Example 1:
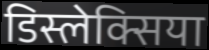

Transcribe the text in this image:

डिस्लेक्सिया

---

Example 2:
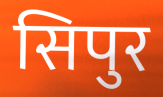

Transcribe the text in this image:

सिपुर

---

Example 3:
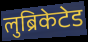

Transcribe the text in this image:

लुब्रिकेटेड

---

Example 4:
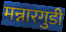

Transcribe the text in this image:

मन्नारगुडी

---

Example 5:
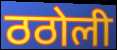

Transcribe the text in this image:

ठठोली